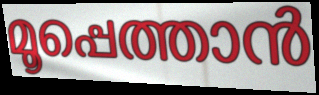
മൂപ്പെത്താൻ